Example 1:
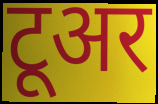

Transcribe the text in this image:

टूअर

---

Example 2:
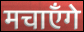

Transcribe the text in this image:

मचाएँगे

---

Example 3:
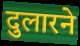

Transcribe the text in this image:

दुलारने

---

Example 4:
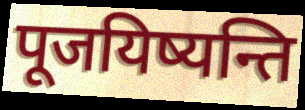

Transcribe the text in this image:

पूजयिष्यन्ति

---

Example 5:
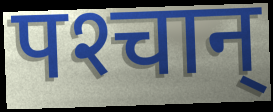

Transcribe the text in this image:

पश्चान्